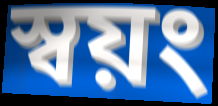
স্বয়ং